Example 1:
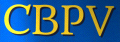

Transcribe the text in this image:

CBPV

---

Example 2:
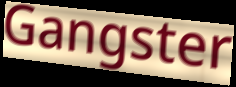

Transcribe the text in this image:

Gangster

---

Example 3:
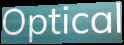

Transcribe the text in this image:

Optical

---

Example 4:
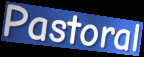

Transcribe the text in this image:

Pastoral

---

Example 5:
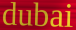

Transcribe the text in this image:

dubai